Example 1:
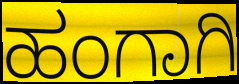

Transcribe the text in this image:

ಹಂಗಾಗಿ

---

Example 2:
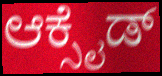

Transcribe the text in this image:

ಆಕ್ಸೈಡ್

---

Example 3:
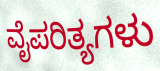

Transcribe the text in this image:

ವೈಪರಿತ್ಯಗಳು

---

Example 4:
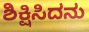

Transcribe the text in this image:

ಶಿಕ್ಷಿಸಿದನು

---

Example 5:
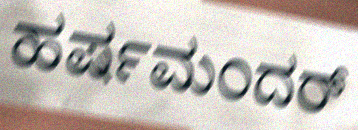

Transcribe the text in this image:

ಹರ್ಷಮಂದರ್